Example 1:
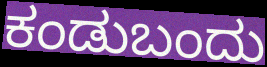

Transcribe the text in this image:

ಕಂಡುಬಂದು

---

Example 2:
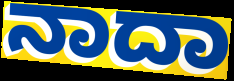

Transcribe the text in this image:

ನಾದಾ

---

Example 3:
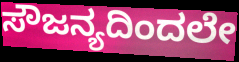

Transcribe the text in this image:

ಸೌಜನ್ಯದಿಂದಲೇ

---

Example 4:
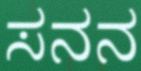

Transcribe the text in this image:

ಸನನ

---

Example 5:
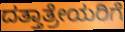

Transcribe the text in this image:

ದತ್ತಾತ್ರೇಯರಿಗೆ